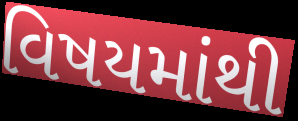
વિષયમાંથી